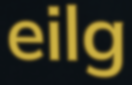
eilg